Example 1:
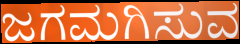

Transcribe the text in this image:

ಜಗಮಗಿಸುವ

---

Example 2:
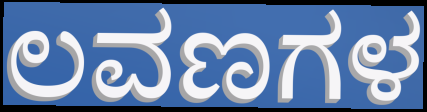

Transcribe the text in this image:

ಲವಣಗಳ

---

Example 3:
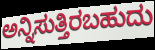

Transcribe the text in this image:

ಅನ್ನಿಸುತ್ತಿರಬಹುದು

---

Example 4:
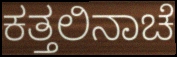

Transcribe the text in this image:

ಕತ್ತಲಿನಾಚೆ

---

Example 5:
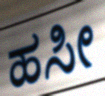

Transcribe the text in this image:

ಹಸೀ